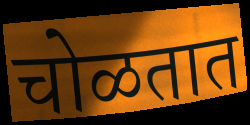
चोळतात